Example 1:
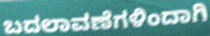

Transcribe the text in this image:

ಬದಲಾವಣೆಗಳಿಂದಾಗಿ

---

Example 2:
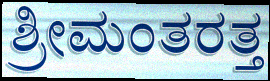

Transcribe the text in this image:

ಶ್ರೀಮಂತರತ್ತ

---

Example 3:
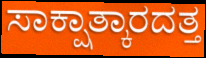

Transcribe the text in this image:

ಸಾಕ್ಷಾತ್ಕಾರದತ್ತ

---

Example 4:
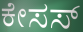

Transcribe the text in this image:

ಕೇಸಸ್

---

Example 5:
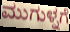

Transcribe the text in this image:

ಮುಗುಳ್ನಗೆ